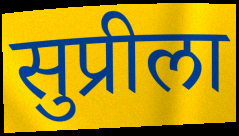
सुप्रीला